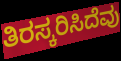
ತಿರಸ್ಕರಿಸಿದೆವು